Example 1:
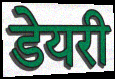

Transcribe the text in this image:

डेयरी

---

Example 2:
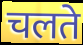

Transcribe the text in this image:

चलते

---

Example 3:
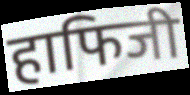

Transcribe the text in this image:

हाफिजी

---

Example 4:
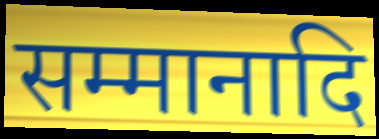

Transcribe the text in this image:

सम्मानादि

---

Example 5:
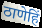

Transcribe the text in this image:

ठाणेहिं